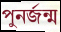
পুনৰ্জন্ম